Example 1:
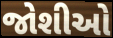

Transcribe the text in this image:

જોશીઓ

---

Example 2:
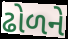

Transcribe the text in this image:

ઢોળને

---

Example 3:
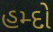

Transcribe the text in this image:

હમ્દો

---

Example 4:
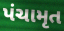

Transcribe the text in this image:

પંચામૃત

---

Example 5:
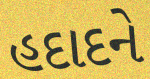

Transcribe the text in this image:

હદાદને